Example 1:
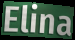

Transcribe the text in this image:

Elina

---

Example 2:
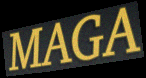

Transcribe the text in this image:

MAGA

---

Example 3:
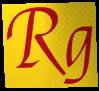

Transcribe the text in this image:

Rg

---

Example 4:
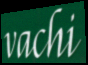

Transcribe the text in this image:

vachi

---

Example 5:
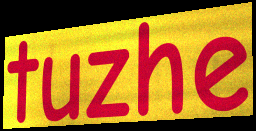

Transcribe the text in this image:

tuzhe